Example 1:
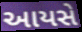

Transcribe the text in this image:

આયસે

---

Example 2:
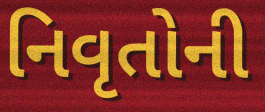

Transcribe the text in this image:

નિવૃતોની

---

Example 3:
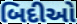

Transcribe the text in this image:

બિદીઓ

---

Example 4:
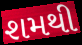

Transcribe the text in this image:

શમથી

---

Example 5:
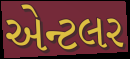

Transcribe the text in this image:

એન્ટલર